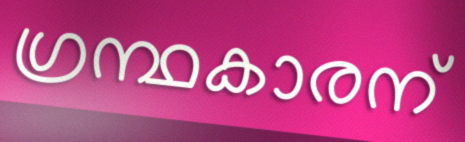
ഗ്രന്ഥകാരന്